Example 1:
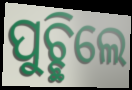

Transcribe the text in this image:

ପୁଚ୍ଛିଲେ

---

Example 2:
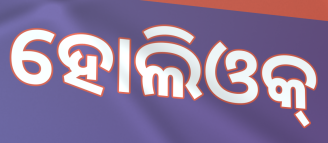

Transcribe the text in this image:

ହୋଲିଓକ୍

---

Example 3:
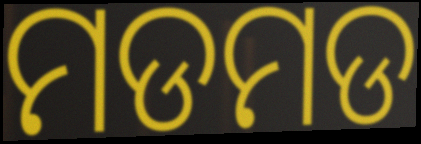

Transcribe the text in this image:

ମଡମଡ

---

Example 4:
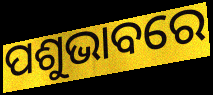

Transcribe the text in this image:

ପଶୁଭାବରେ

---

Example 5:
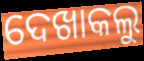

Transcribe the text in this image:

ଦେଖାକଲୁ